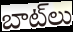
బాట్‌లు